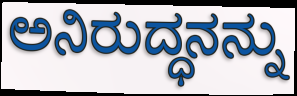
ಅನಿರುದ್ಧನನ್ನು